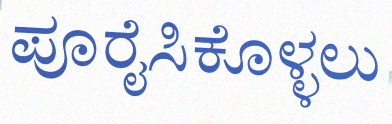
ಪೂರೈಸಿಕೊಳ್ಳಲು